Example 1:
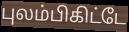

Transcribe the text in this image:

புலம்பிகிட்டே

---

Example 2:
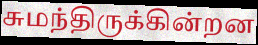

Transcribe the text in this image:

சுமந்திருக்கின்றன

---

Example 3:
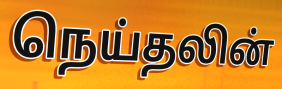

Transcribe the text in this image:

நெய்தலின்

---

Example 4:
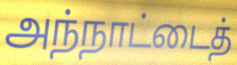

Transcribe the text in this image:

அந்நாட்டைத்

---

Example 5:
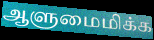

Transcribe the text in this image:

ஆளுமைமிக்க